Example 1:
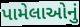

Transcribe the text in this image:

પામેલાઓનું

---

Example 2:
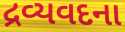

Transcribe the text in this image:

દ્રવ્યવદના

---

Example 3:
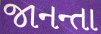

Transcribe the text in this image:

જાનન્તા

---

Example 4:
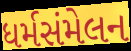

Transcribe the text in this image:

ધર્મસંમેલન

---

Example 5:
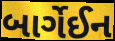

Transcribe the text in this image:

બાર્ગેઈન